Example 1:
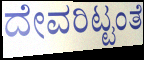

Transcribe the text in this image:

ದೇವರಿಟ್ಟಂತೆ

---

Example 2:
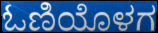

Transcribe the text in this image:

ಓಣಿಯೊಳಗ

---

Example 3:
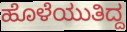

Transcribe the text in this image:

ಹೊಳೆಯುತಿದ್ದ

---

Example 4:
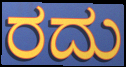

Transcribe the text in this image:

ರದು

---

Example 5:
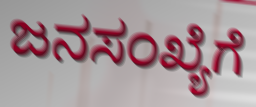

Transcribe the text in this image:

ಜನಸಂಖ್ಯೆಗೆ